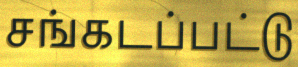
சங்கடப்பட்டு